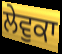
ਲੇਵੁਕਾ